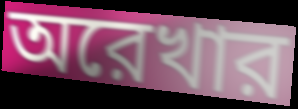
অরেখার